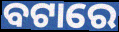
ବଟାରେ